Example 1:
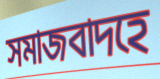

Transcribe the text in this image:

সমাজবাদহে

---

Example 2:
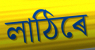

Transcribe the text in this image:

লাঠিৰে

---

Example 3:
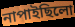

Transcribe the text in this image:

নাপাইছিলো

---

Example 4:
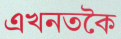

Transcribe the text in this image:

এখনতকৈ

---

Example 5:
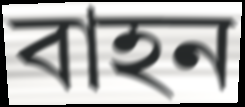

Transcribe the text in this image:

বাহন